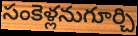
సంకెళ్లనుగూర్చి